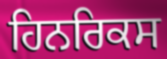
ਹਿਨਰਿਕਸ